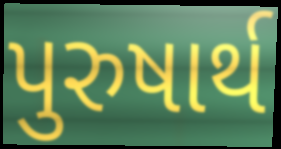
પુરુષાર્થ